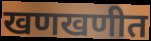
खणखणीत